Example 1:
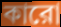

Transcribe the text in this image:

কারো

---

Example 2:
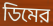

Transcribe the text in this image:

ডিমের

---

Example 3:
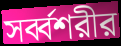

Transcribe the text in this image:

সর্ব্বশরীর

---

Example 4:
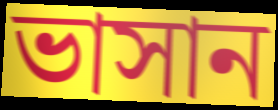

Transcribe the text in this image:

ভাসান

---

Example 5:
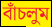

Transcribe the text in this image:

বাঁচলুম